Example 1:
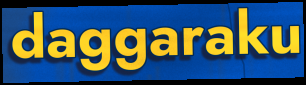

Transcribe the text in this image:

daggaraku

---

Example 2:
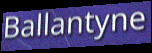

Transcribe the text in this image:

Ballantyne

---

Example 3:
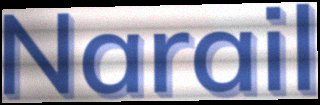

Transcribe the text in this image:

Narail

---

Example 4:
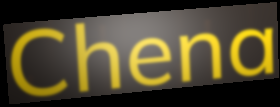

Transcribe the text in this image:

Chena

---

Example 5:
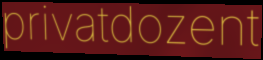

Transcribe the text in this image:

privatdozent